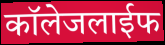
कॉलेजलाईफ